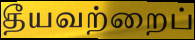
தீயவற்றைப்